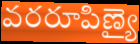
వరరూపిణ్యై